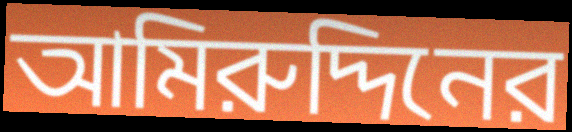
আমিরুদ্দিনের